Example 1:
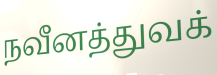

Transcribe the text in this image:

நவீனத்துவக்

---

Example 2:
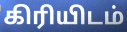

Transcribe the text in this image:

கிரியிடம்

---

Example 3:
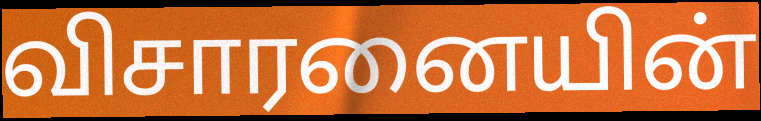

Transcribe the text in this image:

விசாரனையின்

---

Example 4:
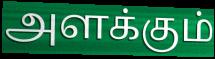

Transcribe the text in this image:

அளக்கும்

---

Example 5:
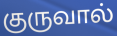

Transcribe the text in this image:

குருவால்